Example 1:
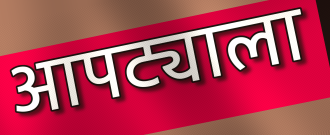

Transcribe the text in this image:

आपट्याला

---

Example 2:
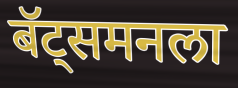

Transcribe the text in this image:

बॅट्समनला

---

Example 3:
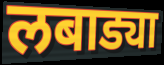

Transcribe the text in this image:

लबाड्या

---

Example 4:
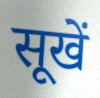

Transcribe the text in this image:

सूखें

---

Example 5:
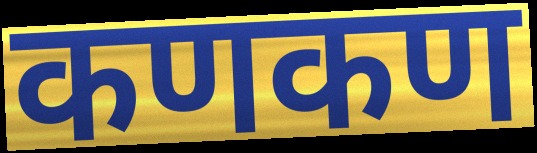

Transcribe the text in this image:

कणकण